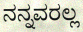
ನನ್ನವರಲ್ಲ